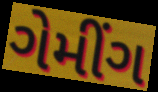
ગેમીંગ